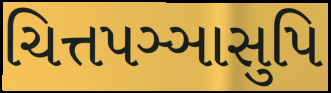
ચિત્તપઞ્ઞાસુપિ